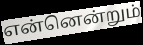
என்னென்றும்